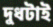
দুধটাই